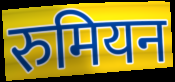
रुमियन